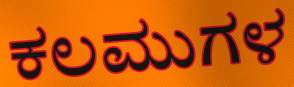
ಕಲಮುಗಳ